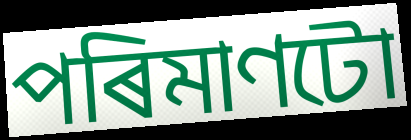
পৰিমাণটো